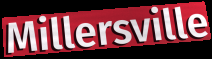
Millersville